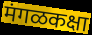
मंगळकक्षा